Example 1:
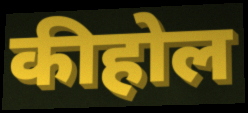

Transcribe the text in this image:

कीहोल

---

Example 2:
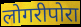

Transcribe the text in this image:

लोगरीपोरा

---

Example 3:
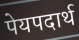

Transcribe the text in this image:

पेयपदार्थ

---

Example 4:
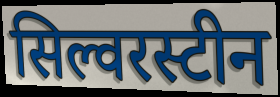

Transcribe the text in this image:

सिल्वरस्टीन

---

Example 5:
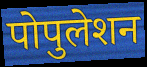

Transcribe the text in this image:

पोपुलेशन